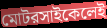
মোটরসাইকেলেই